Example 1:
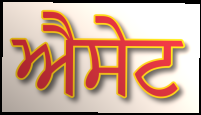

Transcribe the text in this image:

ਐਸੇਟ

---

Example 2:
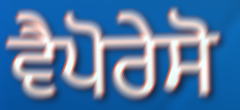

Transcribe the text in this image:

ਵੈਪੋਰੇਸੋ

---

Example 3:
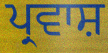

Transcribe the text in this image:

ਪ੍ਰਵਾਸ਼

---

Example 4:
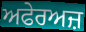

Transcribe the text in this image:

ਅਫੇਰਅਜ਼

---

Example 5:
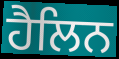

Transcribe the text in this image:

ਹੈਲਿਨ